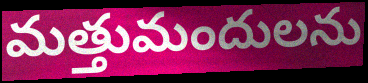
మత్తుమందులను